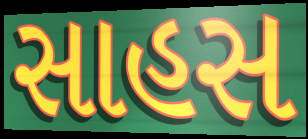
સાહસ